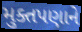
મુક્તપણાને